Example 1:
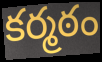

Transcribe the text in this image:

కర్మఠం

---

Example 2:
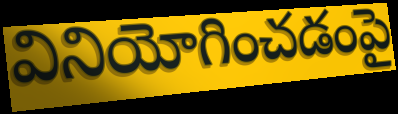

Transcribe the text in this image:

వినియోగించడంపై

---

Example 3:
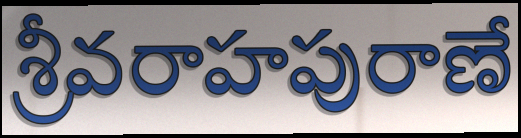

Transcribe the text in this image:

శ్రీవరాహపురాణే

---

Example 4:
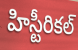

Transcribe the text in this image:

హిస్టీరికల్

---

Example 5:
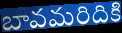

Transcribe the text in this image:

బావమరిదికి